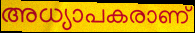
അധ്യാപകരാണ്